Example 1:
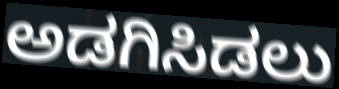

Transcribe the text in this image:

ಅಡಗಿಸಿಡಲು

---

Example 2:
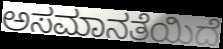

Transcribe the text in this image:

ಅಸಮಾನತೆಯಿದೆ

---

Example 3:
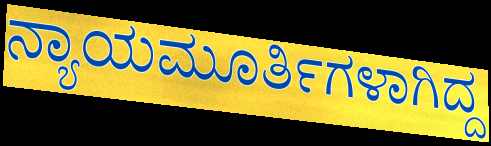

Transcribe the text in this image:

ನ್ಯಾಯಮೂರ್ತಿಗಳಾಗಿದ್ದ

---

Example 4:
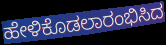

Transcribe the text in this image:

ಹೇಳಿಕೊಡಲಾರಂಭಿಸಿದ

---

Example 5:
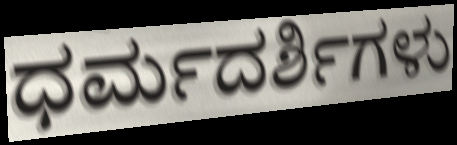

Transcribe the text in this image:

ಧರ್ಮದರ್ಶಿಗಳು